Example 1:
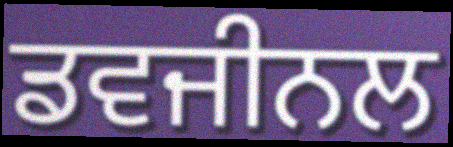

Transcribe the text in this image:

ਡਵਜੀਨਲ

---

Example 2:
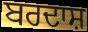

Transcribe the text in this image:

ਬਰਦਾਸ਼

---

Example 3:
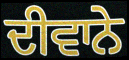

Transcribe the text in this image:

ਦੀਵਾਨੇ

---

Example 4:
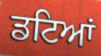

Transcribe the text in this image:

ਡਟਿਆਂ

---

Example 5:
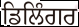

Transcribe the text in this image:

ਡਿਲਿੰਗਰ